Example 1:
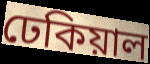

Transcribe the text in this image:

ঢেকিয়াল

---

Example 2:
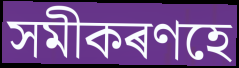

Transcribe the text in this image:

সমীকৰণহে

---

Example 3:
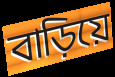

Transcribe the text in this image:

বাড়িয়ে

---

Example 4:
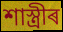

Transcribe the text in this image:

শাস্ত্ৰীৰ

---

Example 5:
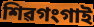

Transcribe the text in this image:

শিৱগংগাই